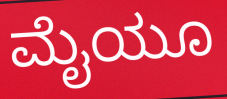
ಮೈಯೂ